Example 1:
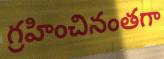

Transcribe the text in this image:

గ్రహించినంతగా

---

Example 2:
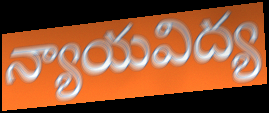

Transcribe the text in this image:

న్యాయవిద్య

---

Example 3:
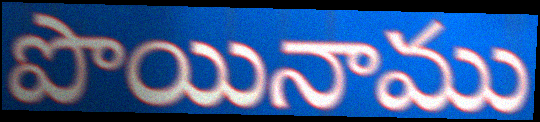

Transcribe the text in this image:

పొయినాము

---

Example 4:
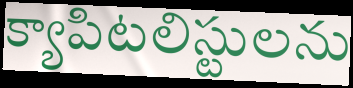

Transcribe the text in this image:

క్యాపిటలిస్టులను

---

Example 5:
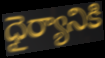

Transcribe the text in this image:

ధైర్యానికి